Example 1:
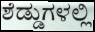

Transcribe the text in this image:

ಶೆಡ್ಡುಗಳಲ್ಲಿ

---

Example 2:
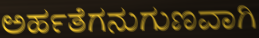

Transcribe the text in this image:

ಅರ್ಹತೆಗನುಗುಣವಾಗಿ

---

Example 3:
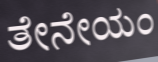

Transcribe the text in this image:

ತೇನೇಯಂ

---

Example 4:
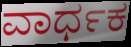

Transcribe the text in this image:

ವಾರ್ಧಕ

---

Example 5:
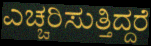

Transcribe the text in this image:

ಎಚ್ಚರಿಸುತ್ತಿದ್ದರೆ